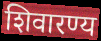
शिवारण्य